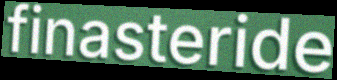
finasteride